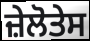
ਜ਼ੇਲੋਤੇਸ